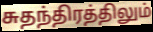
சுதந்திரத்திலும்